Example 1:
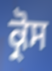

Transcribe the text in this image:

ਕ੍ਰੋਸ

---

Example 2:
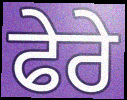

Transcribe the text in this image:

ਫੇਰੇ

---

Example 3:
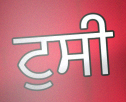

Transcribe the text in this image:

ਟੁਸੀ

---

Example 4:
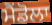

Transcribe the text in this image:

ਮੈਂਡੋਲਾ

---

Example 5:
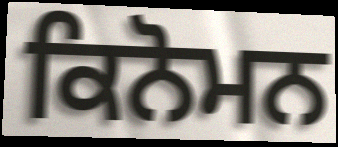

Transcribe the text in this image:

ਕਿਨੋਮਨ